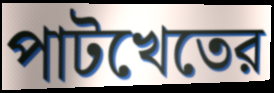
পাটখেতের